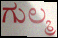
ಗುಲ್ಮ